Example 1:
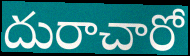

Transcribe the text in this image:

దురాచారో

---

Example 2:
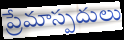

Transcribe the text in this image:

ప్రేమాస్పదులు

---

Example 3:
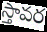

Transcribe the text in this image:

స్తావర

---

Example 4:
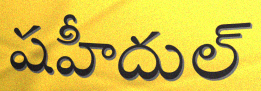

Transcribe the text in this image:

షహీదుల్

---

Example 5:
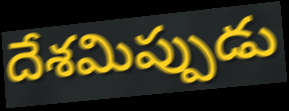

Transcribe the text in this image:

దేశమిప్పుడు